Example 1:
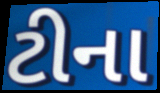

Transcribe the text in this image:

ટીના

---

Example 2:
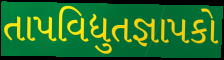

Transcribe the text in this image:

તાપવિદ્યુતજ્ઞાપકો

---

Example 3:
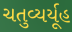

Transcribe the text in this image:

ચતુવ્યર્યૂહ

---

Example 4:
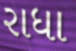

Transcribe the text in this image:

રાધા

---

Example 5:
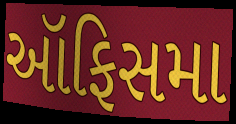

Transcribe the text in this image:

ઑફિસમા